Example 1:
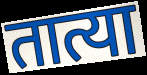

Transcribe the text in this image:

तात्या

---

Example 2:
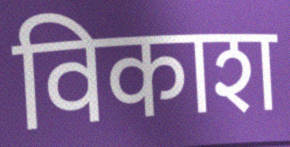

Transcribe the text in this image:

विकाश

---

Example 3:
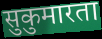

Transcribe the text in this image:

सुकुमारता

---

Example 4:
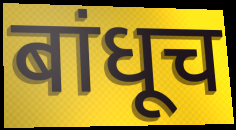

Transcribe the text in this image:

बांधूच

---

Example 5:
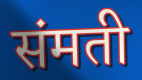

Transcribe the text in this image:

संमती